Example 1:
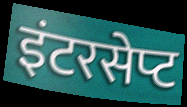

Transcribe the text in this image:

इंटरसेप्‍ट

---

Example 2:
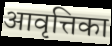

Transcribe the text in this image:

आवृत्तिका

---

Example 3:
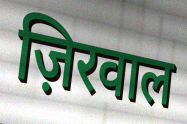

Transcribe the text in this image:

ज़िरवाल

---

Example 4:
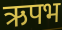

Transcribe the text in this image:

ऋपभ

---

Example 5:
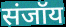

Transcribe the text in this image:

संजॉय